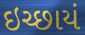
ઇચ્છાયં